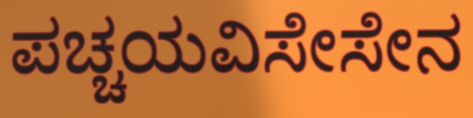
ಪಚ್ಚಯವಿಸೇಸೇನ